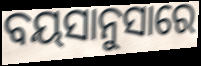
ବୟସାନୁସାରେ